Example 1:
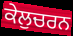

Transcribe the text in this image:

ਕੇਲੁਚਰਨ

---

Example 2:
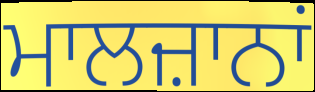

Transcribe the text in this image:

ਮਾਲਜ਼ਾਨਾਂ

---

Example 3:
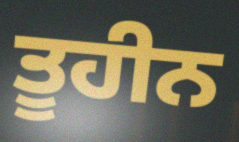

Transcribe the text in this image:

ਤੂਹੀਨ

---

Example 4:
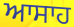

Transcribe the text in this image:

ਆਸਾਹ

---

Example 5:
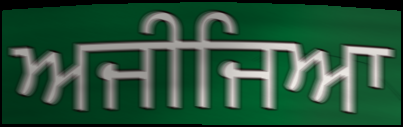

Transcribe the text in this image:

ਅਜੀਜਿਆ